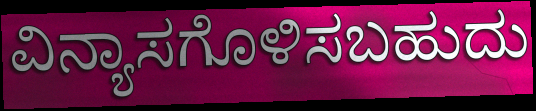
ವಿನ್ಯಾಸಗೊಳಿಸಬಹುದು